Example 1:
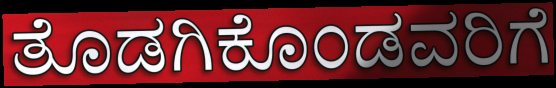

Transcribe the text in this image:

ತೊಡಗಿಕೊಂಡವರಿಗೆ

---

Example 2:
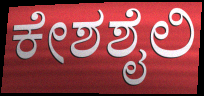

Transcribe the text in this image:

ಕೇಶಶೈಲಿ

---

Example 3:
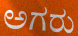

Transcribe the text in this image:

ಅಗರು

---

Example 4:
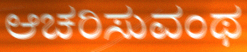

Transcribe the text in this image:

ಆಚರಿಸುವಂಥ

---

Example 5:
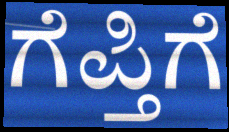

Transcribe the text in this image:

ಗೆಪ್ತಿಗೆ